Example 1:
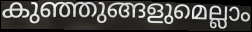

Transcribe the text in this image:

കുഞ്ഞുങ്ങളുമെല്ലാം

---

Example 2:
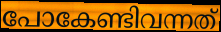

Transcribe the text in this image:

പോകേണ്ടിവന്നത്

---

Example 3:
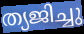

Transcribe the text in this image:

ത്യജിച്ചു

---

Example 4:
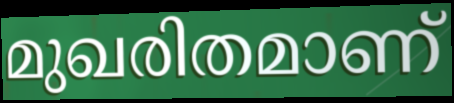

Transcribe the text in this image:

മുഖരിതമാണ്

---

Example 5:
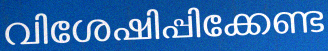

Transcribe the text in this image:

വിശേഷിപ്പിക്കേണ്ട